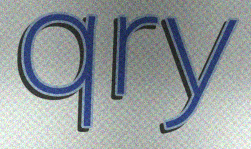
qry